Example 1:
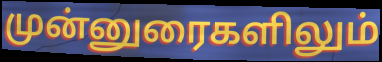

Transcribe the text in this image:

முன்னுரைகளிலும்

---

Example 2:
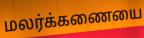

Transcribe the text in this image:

மலர்க்கணையை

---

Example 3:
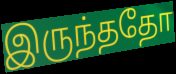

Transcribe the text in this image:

இருந்ததோ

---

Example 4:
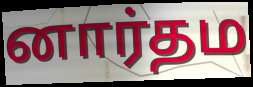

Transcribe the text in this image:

னார்தம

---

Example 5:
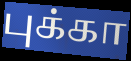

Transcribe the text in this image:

புக்கா